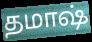
தமாஷ்